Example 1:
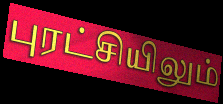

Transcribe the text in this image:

புரட்சியிலும்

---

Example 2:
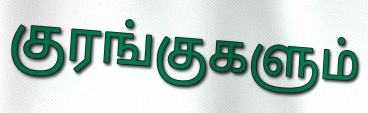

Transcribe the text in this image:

குரங்குகளும்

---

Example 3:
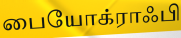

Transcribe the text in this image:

பையோக்ராஃபி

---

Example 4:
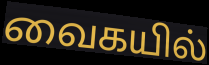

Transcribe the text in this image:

வைகயில்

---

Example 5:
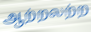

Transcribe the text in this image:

ஆற்றலற்ற